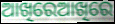
ଆଖିରେଆଖିରେ